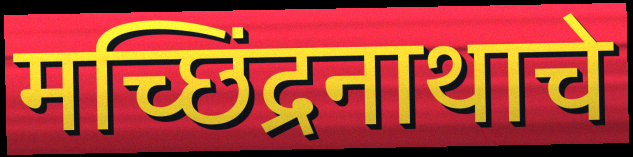
मच्छिंद्रनाथाचे